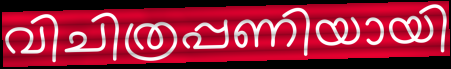
വിചിത്രപ്പണിയായി